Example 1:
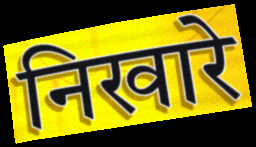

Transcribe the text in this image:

निखारे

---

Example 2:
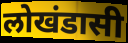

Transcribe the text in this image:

लोखंडासी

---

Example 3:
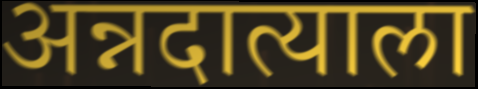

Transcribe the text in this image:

अन्नदात्याला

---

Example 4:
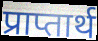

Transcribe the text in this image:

प्राप्तार्थ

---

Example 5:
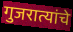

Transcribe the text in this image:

गुजरात्यांचे